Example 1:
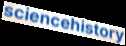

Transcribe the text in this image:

sciencehistory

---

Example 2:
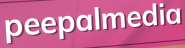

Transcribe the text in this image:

peepalmedia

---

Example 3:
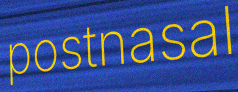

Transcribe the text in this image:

postnasal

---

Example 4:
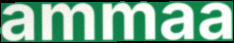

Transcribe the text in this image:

ammaa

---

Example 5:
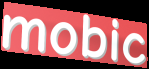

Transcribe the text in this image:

mobic